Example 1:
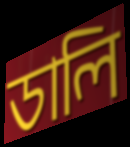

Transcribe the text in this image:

ডালি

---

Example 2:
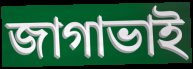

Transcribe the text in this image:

জাগাভাই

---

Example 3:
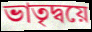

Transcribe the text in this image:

ভাতৃদ্বয়ে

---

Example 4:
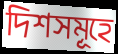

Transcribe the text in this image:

দিশসমূহে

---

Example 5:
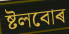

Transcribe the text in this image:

ষ্টলবোৰ